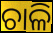
ଚାଳି